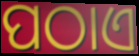
ପଠାଏ